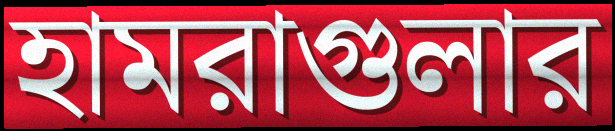
হামরাগুলার